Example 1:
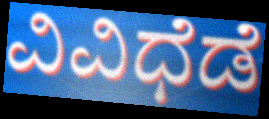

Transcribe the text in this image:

ವಿವಿಧೆಡೆ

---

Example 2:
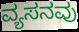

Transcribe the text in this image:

ವ್ಯಸನವು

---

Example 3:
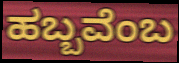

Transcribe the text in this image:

ಹಬ್ಬವೆಂಬ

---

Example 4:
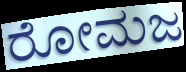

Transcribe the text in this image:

ರೋಮಜ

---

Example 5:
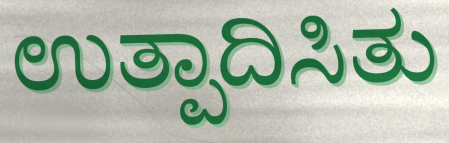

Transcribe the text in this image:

ಉತ್ಪಾದಿಸಿತು